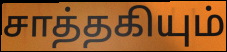
சாத்தகியும்